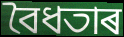
বৈধতাৰ